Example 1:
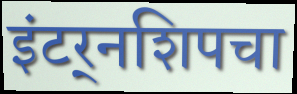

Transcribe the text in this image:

इंटर्नशिपचा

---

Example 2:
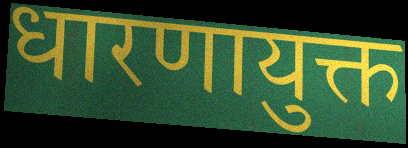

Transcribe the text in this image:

धारणायुक्त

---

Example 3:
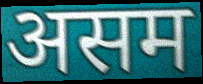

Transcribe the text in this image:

असम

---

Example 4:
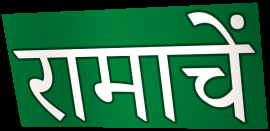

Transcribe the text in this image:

रामाचें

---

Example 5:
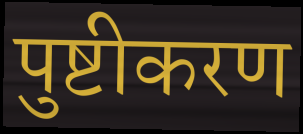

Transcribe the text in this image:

पुष्टीकरण